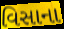
વિસાના